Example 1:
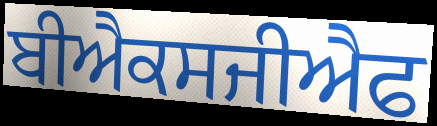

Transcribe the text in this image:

ਬੀਐਕਸਜੀਐਫ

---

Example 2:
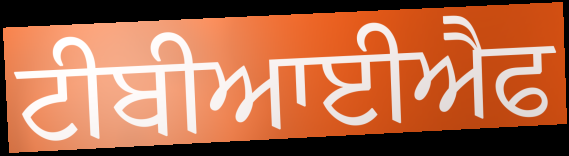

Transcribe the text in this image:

ਟੀਬੀਆਈਐਫ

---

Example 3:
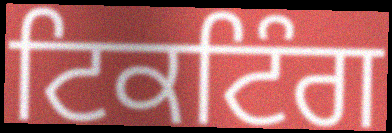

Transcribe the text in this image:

ਟਿਕਟਿੰਗ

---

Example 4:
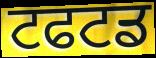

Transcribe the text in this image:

ਟਫਟਡ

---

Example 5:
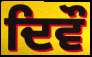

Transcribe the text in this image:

ਦਿਵੌ